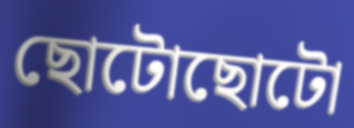
ছোটোছোটো